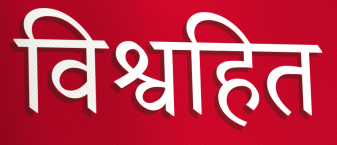
विश्वहित